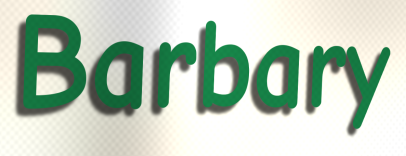
Barbary